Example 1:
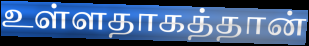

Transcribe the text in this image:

உள்ளதாகத்தான்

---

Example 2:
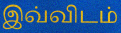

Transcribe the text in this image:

இவ்விடம்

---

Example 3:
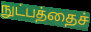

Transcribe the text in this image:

நுட்பத்தைச்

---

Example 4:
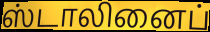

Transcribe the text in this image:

ஸ்டாலினைப்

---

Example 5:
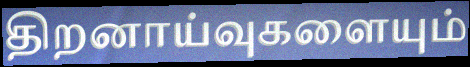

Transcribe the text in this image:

திறனாய்வுகளையும்